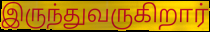
இருந்துவருகிறார்